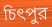
চিৎপুর